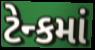
ટેન્કમાં